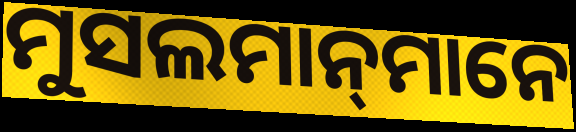
ମୁସଲମାନ୍‌ମାନେ